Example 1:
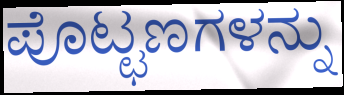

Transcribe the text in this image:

ಪೊಟ್ಟಣಗಳನ್ನು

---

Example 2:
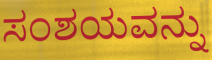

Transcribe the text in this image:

ಸಂಶಯವನ್ನು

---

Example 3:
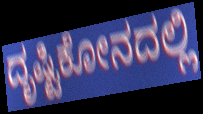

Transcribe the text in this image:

ದೃಷ್ಟಿಕೋನದಲ್ಲಿ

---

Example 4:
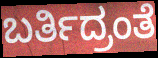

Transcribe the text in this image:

ಬರ್ತಿದ್ರಂತೆ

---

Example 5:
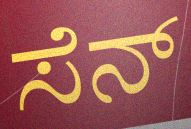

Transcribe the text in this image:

ಸೆನ್